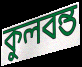
কুলবন্ত